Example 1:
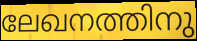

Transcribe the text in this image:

ലേഖനത്തിനു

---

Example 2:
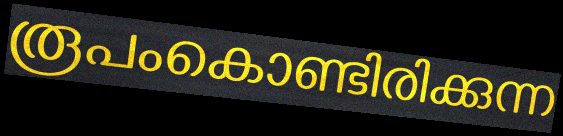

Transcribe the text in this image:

രൂപംകൊണ്ടിരിക്കുന്ന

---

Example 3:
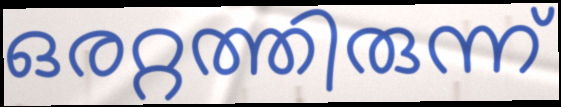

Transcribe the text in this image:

ഒരറ്റത്തിരുന്ന്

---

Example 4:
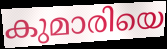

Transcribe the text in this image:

കുമാരിയെ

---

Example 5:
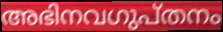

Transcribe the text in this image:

അഭിനവഗുപ്തനം